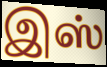
இஸ்